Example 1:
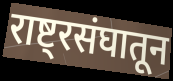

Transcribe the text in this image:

राष्ट्रसंघातून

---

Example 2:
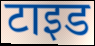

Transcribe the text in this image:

टाइड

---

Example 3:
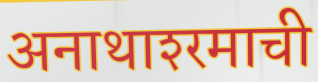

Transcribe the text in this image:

अनाथाश्रमाची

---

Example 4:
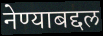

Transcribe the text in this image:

नेण्याबद्दल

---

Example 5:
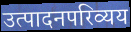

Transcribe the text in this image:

उत्पादनपरिव्यय